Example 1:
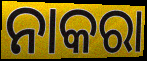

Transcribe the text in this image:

ନାକରା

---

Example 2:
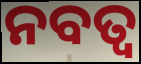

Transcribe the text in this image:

ନବତ୍ଵ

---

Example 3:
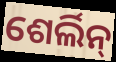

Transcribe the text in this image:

ଶେର୍ଲିନ୍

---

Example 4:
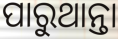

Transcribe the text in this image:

ପାରୁଥାନ୍ତା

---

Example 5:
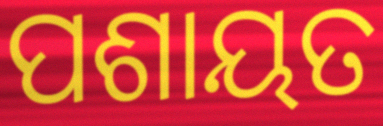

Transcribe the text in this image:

ପଶାୟତ